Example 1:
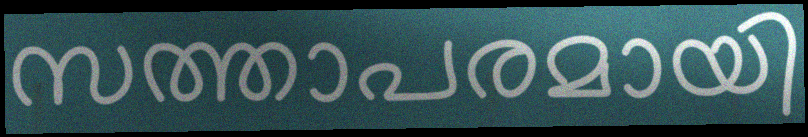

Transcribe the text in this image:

സത്താപരമായി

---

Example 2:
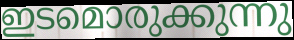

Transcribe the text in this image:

ഇടമൊരുക്കുന്നു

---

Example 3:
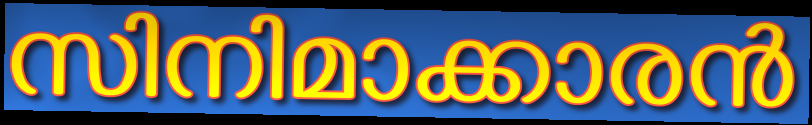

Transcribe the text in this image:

സിനിമാക്കാരൻ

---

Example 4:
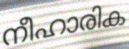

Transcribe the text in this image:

നീഹാരിക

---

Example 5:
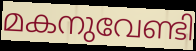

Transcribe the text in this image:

മകനുവേണ്ടി